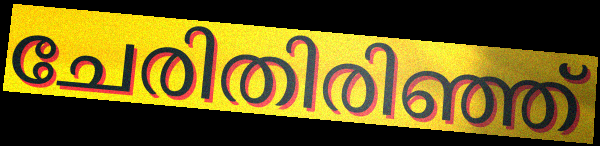
ചേരിതിരിഞ്ഞ്